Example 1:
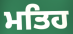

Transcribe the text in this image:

ਮਤਿਹ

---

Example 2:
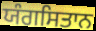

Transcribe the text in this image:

ਯੰਗਸਿਤਾਨ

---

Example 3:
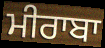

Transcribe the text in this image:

ਮੀਰਾਬਾ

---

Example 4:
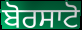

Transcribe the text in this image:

ਬੋਰਸਾਟੋ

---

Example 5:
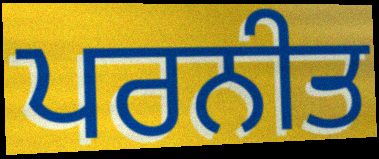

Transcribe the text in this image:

ਪਰਨੀਤ